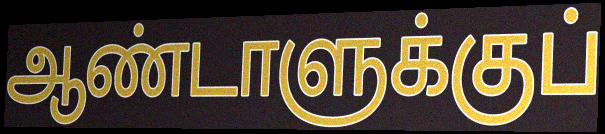
ஆண்டாளுக்குப்